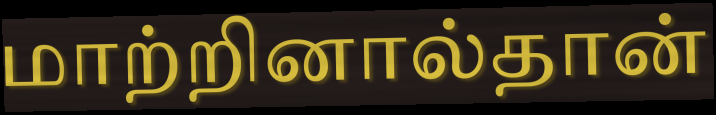
மாற்றினால்தான்